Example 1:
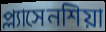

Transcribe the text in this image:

প্ল্যাসেনশিয়া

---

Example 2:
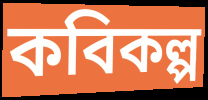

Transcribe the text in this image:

কবিকল্প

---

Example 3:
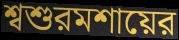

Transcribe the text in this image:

শ্বশুরমশায়ের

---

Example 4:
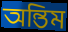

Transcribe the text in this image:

অন্তিম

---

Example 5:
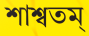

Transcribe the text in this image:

শাশ্বতম্